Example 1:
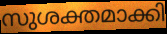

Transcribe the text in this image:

സുശക്തമാക്കി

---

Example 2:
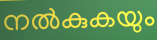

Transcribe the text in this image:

നൽകുകയും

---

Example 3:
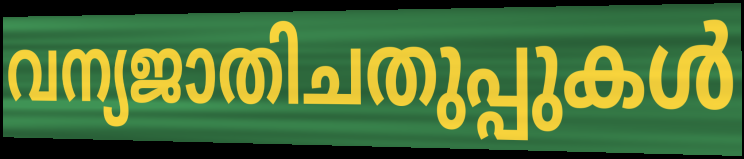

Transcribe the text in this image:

വന്യജാതിചതുപ്പുകൾ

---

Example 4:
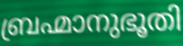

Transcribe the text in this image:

ബ്രഹ്മാനുഭൂതി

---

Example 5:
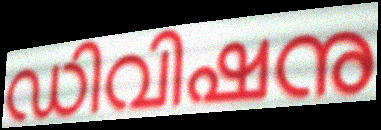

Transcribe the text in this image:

ഡിവിഷനു